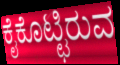
ಕೈಕೊಟ್ಟಿರುವ